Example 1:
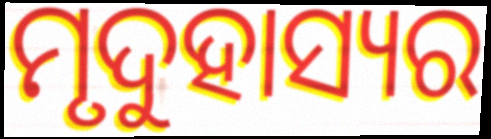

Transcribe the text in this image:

ମୃଦୁହାସ୍ୟର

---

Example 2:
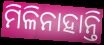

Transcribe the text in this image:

ମିଳିନାହାନ୍ତି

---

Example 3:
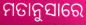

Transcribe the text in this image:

ମତାନୁସାରେ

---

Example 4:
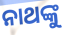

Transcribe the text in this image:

ନାଥଙ୍କୁ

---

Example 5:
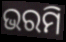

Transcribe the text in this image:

ଭରମି